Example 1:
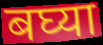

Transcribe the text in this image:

बघ्या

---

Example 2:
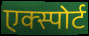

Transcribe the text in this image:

एक्‍स्पोर्ट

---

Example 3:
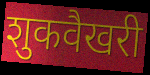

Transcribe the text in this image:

शुकवैखरी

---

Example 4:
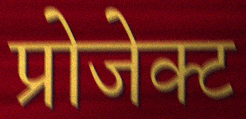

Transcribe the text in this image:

प्रोजेक्ट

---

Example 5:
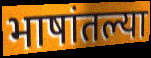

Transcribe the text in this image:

भाषांतल्या